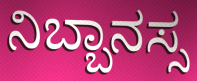
ನಿಬ್ಬಾನಸ್ಸ